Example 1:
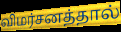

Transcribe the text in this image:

விமர்சனத்தால்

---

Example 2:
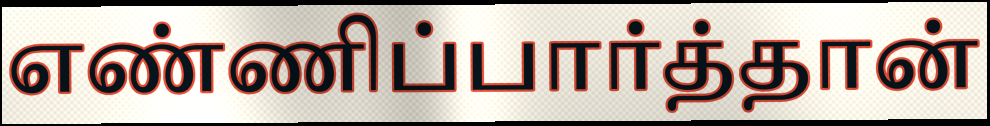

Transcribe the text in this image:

எண்ணிப்பார்த்தான்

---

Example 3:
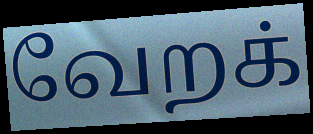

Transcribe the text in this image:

வேறக்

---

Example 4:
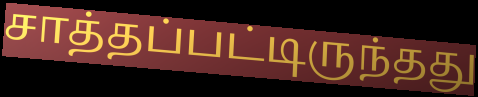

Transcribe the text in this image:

சாத்தப்பட்டிருந்தது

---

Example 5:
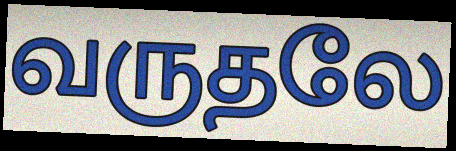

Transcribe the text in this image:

வருதலே